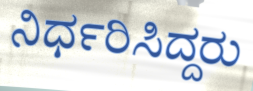
ನಿರ್ಧರಿಸಿದ್ದರು